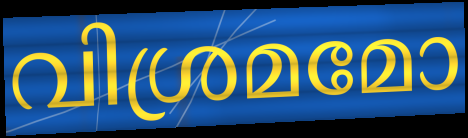
വിശ്രമമോ